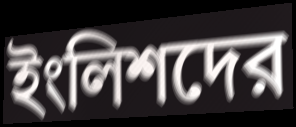
ইংলিশদের